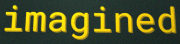
imagined